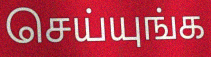
செய்யுங்க